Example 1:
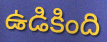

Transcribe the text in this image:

ఉడికింది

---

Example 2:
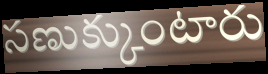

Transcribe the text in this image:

సణుక్కుంటారు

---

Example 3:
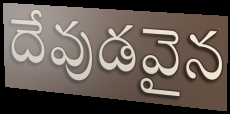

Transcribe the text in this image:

దేవుడవైన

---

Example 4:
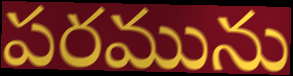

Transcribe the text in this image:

పరమును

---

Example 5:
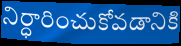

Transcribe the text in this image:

నిర్ధారించుకోవడానికి